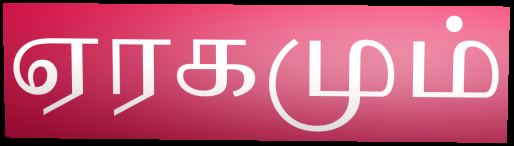
ஏரகமும்